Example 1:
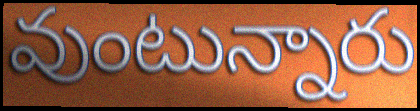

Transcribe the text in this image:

వుంటున్నారు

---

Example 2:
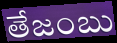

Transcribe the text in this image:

తేజంబు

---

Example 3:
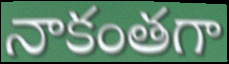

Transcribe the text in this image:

నాకంతగా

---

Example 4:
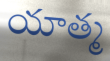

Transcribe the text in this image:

యాత్మ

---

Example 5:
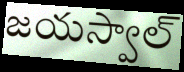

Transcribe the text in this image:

జయస్వాల్